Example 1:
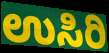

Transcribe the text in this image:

ಉಸಿರಿ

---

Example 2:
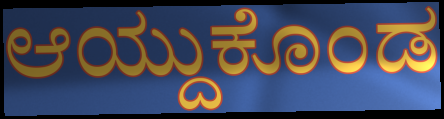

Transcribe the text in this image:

ಆಯ್ದುಕೊಂಡ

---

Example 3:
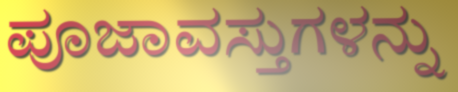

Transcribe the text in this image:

ಪೂಜಾವಸ್ತುಗಳನ್ನು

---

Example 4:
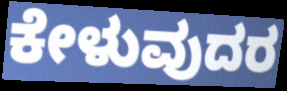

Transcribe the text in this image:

ಕೇಳುವುದರ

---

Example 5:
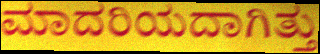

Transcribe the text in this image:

ಮಾದರಿಯದಾಗಿತ್ತು